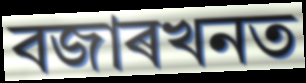
বজাৰখনত